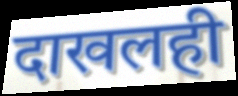
दाखलही